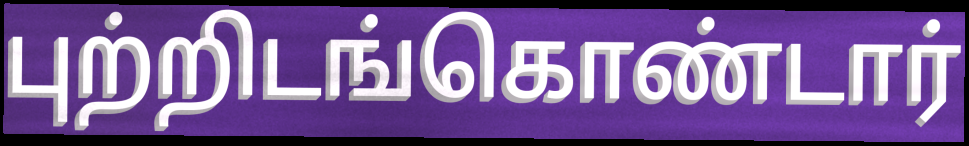
புற்றிடங்கொண்டார்